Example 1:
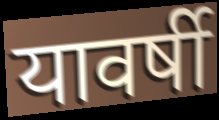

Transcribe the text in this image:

यावर्षी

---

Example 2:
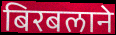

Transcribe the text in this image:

बिरबलाने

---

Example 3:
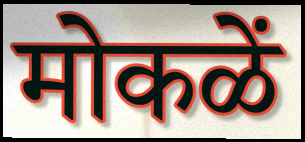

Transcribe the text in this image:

मोकळें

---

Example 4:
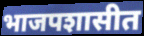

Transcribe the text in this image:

भाजपशासीत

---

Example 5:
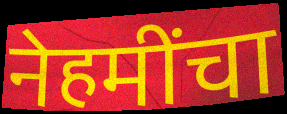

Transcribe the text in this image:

नेहमींचा